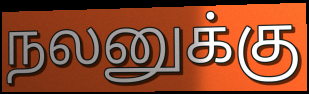
நலனுக்கு